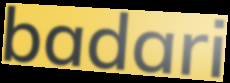
badari